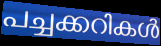
പച്ചക്കറികൾ